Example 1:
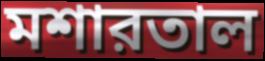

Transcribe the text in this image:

মশারতাল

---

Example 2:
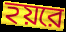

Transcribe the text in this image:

হয়রে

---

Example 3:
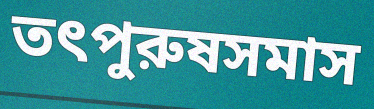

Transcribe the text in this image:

তৎপুরুষসমাস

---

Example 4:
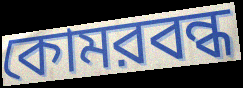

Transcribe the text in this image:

কোমরবন্ধ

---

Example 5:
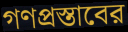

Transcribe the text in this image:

গণপ্রস্তাবের